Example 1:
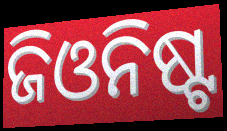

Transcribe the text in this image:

ଜିଓନିଷ୍ଟ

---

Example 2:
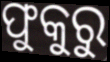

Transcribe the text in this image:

ଫୁକୁରୁ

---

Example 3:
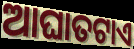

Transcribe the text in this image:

ଆଘାତଟାଏ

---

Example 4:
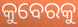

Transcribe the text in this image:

କୁବେରକୁ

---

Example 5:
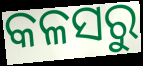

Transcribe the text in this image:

କଳସରୁ